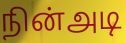
நின்அடி